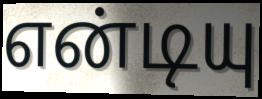
என்டியு